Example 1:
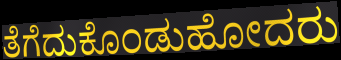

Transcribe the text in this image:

ತೆಗೆದುಕೊಂಡುಹೋದರು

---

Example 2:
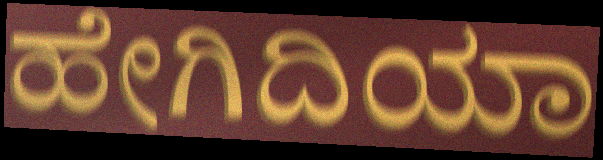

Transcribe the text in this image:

ಹೇಗಿದಿಯಾ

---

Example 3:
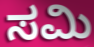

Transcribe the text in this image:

ಸಮಿ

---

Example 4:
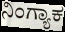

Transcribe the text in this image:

ನಿಂಗ್ಯಾಕ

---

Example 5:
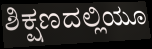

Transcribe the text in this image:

ಶಿಕ್ಷಣದಲ್ಲಿಯೂ